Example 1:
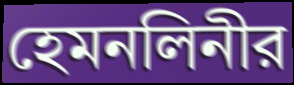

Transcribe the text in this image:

হেমনলিনীর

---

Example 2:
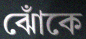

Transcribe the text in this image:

ঝোঁকে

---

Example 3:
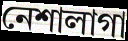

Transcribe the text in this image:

নেশালাগা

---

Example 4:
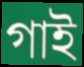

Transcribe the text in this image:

গাই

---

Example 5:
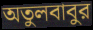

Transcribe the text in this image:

অতুলবাবুর